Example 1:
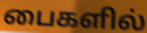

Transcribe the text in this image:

பைகளில்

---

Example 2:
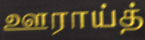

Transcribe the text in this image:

ஊராய்த்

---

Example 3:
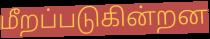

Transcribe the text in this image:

மீறப்படுகின்றன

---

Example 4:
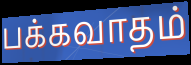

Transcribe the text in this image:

பக்கவாதம்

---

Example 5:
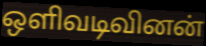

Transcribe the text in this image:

ஒளிவடிவினன்